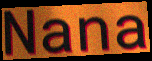
Nana